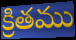
క్రితము